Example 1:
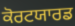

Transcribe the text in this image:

ਕੋਰਟਯਾਰਡ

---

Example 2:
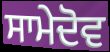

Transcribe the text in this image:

ਸਾਮੇਦੋਵ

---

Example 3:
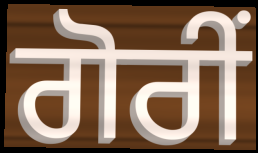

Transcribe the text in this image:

ਗੋਰੀਂ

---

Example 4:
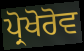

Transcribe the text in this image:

ਪ੍ਰੋਖੋਰੋਵ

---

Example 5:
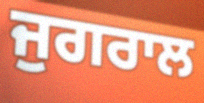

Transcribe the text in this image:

ਜੁਗਰਾਲ